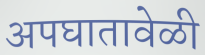
अपघातावेळी